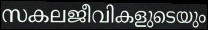
സകലജീവികളുടെയും